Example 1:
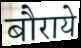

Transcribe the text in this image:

बौराये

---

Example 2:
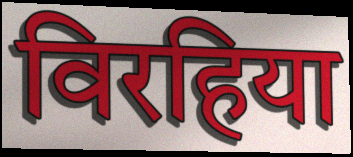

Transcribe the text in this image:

विरहिया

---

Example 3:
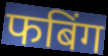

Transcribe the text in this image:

फबिंग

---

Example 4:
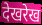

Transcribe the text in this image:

देखरेख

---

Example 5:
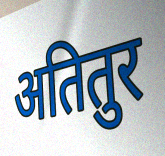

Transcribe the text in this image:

अतितुर